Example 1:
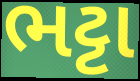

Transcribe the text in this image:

ભટ્ટા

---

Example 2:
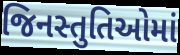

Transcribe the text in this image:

જિનસ્તુતિઓમાં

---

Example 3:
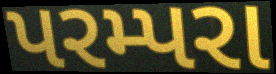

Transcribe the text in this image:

પરમ્પરા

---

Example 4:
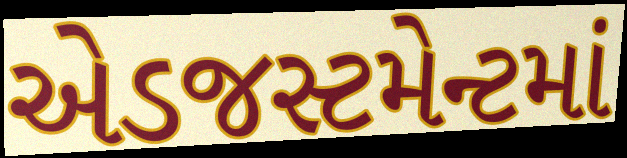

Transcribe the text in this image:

એડજસ્ટમેન્ટમાં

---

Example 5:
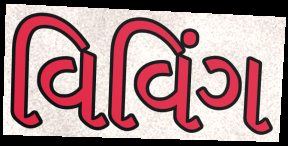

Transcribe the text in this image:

વિવિંગ